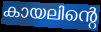
കായലിന്റെ